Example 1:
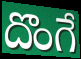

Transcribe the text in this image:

దొంగే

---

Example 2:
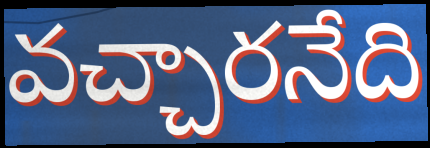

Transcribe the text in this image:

వచ్చారనేది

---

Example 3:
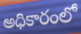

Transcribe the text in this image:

అధికారంలో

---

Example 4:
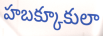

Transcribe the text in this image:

హబక్కూకులా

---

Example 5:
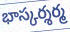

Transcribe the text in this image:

భాస్కర్శర్మ